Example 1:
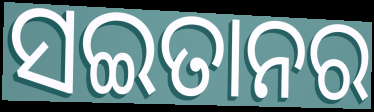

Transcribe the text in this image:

ସଇତାନର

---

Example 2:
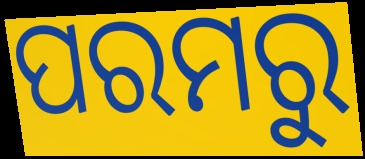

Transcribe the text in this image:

ପରମରୁ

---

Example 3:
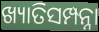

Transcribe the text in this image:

ଖ୍ୟାତିସମ୍ପନ୍ନା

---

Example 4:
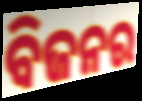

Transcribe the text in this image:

ବିଜନର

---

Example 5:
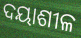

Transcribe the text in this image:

ଦୟାଶୀଳ